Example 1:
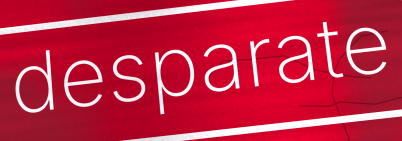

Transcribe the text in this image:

desparate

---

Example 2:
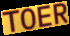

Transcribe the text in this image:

TOER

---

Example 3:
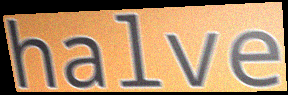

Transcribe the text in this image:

halve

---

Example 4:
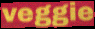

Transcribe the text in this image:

veggie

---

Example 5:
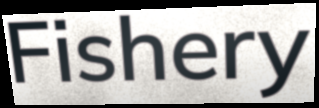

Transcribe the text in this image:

Fishery